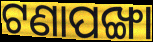
ଟଣାପଙ୍ଖା